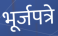
भूर्जपत्रे